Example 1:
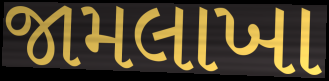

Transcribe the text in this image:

જામલાખા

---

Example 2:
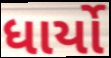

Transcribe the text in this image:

ધાર્યો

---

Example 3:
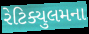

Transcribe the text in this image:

રેટિક્યુલમના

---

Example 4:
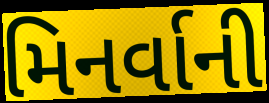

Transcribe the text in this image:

મિનર્વાની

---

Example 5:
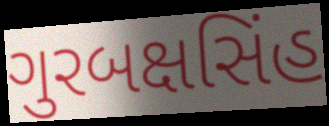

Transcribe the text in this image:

ગુરબક્ષસિંહ